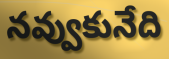
నవ్వుకునేది